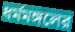
ধর্মমঙ্গলের